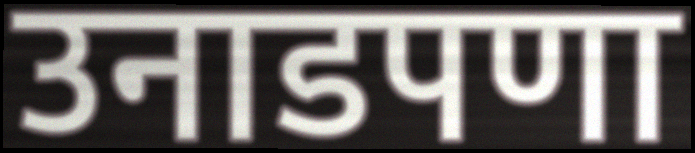
उनाडपणा